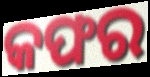
କଫର